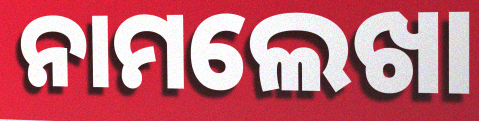
ନାମଲେଖା